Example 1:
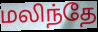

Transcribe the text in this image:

மலிந்தே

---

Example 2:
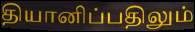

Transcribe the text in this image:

தியானிப்பதிலும்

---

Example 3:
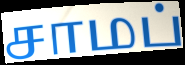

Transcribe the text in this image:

சாமப்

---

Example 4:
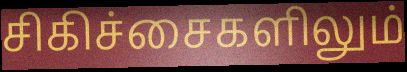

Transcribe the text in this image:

சிகிச்சைகளிலும்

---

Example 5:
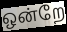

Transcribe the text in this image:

ஒன்றே